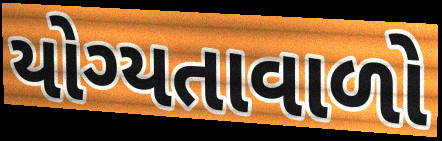
યોગ્યતાવાળો